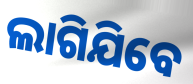
ଲାଗିଯିବେ